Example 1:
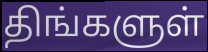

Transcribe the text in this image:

திங்களுள்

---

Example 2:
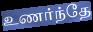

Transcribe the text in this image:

உணர்ந்தே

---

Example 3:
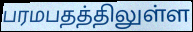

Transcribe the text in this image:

பரமபதத்திலுள்ள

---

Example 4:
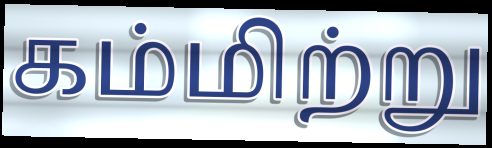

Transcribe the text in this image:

கம்மிற்று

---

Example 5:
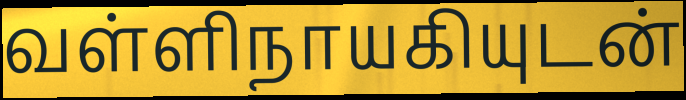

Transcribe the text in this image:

வள்ளிநாயகியுடன்